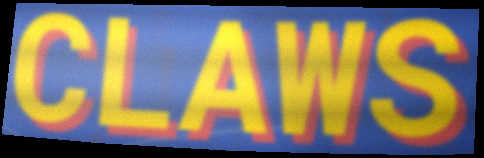
CLAWS